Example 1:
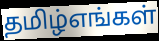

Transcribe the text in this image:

தமிழ்எங்கள்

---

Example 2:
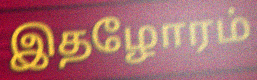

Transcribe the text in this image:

இதழோரம்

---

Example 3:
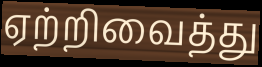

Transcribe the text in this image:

ஏற்றிவைத்து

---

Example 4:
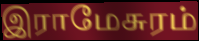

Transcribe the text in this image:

இராமேசுரம்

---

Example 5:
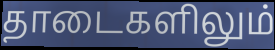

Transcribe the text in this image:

தாடைகளிலும்